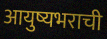
आयुष्यभराची